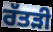
ਰੱਤੜੀ